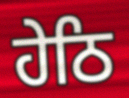
ਹੇਠਿ